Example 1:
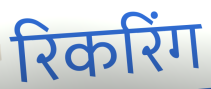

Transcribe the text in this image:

रिकरिंग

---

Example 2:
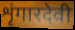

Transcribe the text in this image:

शृंगारदेवी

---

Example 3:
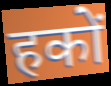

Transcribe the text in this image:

हकों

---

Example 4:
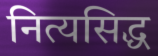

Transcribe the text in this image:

नित्यसिद्ध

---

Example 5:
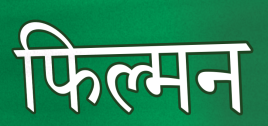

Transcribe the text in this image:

फिल्मन